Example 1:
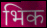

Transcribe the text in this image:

भिक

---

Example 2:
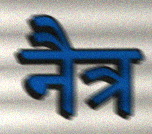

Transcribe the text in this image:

नैत्र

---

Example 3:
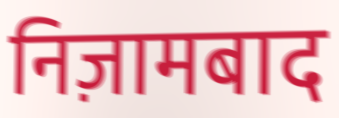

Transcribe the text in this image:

निज़ामबाद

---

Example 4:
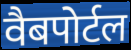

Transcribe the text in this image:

वैबपोर्टल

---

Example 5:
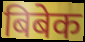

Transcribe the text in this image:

बिबेक